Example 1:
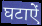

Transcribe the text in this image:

घटाऐं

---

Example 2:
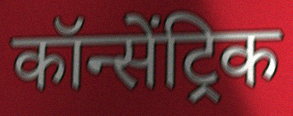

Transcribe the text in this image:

कॉन्सेंट्रिक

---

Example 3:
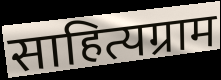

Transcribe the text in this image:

साहित्यग्राम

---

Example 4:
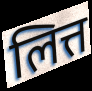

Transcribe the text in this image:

लित्त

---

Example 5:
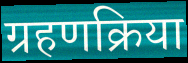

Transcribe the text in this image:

ग्रहणक्रिया